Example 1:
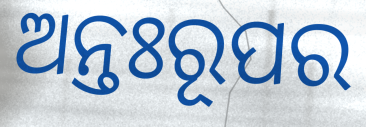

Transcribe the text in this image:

ଅନ୍ତଃରୂପର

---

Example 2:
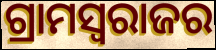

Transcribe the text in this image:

ଗ୍ରାମସ୍ୱରାଜର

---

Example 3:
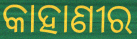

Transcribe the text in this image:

କାହାଣୀର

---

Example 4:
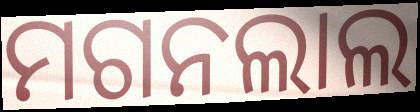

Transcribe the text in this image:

ମଗନଲାଲ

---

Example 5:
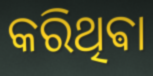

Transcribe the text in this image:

କରିଥିଵା